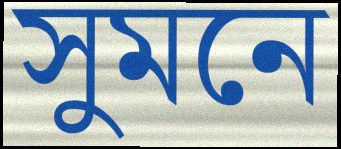
সুমনে